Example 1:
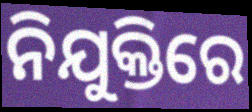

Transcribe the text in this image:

ନିଯୁକ୍ତିରେ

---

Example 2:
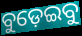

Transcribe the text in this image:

ବୁଡ଼େଇବୁ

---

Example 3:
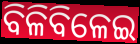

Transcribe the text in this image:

ବିଳିବିଳେଇ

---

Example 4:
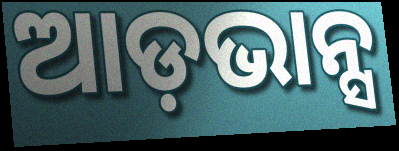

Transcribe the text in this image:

ଆଡ଼ଭାନ୍ସ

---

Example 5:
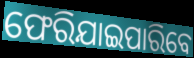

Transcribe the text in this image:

ଫେରିଯାଇପାରିବେ